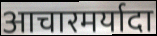
आचारमर्यादा